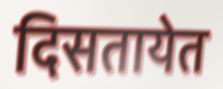
दिसतायेत